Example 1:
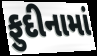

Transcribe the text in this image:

ફુદીનામાં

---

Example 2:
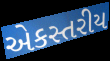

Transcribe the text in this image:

એકસ્તરીય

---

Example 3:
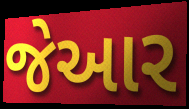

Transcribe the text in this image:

જેઆર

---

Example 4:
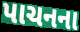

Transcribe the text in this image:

પાચનના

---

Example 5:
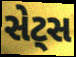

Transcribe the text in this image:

સેટ્સ